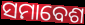
ସମାବେଶ